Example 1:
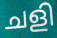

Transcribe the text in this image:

ചളി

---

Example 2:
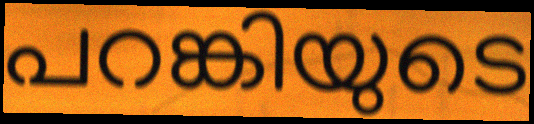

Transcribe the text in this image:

പറങ്കിയുടെ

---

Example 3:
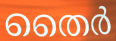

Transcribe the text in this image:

തൈർ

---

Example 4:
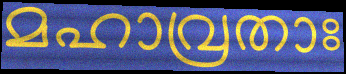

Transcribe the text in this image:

മഹാവ്രതാഃ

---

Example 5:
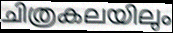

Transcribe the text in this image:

ചിത്രകലയിലും